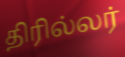
திரில்லர்